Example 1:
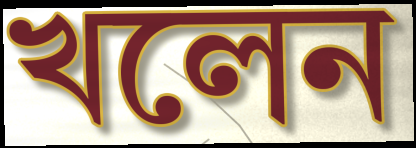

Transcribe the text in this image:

খলেন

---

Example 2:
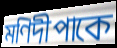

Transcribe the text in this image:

মণিদীপাকে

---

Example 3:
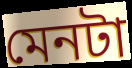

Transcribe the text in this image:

মেনটা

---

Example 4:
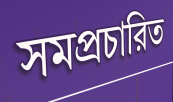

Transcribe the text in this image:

সমপ্রচারিত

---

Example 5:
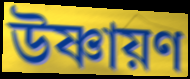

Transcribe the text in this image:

উষ্ণায়ণ